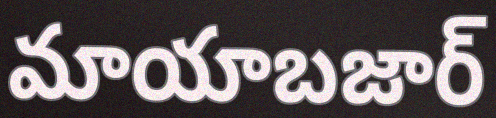
మాయాబజార్